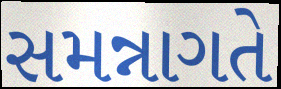
સમન્નાગતે